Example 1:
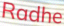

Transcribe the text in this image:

Radhe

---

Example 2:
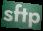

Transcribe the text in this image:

sftp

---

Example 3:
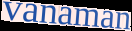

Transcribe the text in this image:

vanaman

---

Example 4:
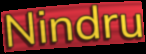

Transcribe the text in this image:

Nindru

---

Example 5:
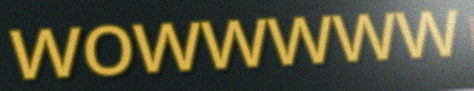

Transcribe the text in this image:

wowwwww